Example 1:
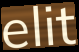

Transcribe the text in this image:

elit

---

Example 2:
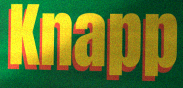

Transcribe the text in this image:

Knapp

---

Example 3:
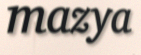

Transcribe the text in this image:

mazya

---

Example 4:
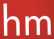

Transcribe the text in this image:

hm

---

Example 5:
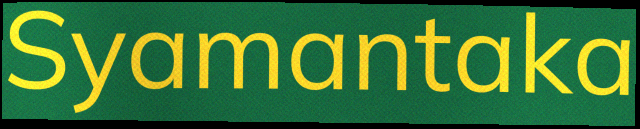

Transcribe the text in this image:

Syamantaka